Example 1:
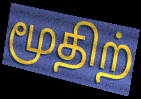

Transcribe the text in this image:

மூதிற்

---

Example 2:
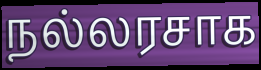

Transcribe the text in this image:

நல்லரசாக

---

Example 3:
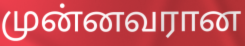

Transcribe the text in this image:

முன்னவரான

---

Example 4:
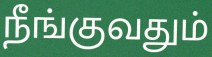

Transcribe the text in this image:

நீங்குவதும்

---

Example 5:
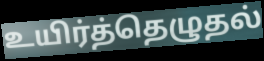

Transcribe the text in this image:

உயிர்த்தெழுதல்